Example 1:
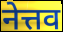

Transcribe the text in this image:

नेत्तव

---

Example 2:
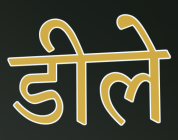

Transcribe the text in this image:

डीले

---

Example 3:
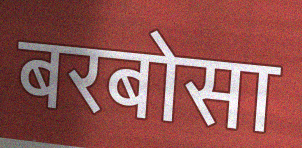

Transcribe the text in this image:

बरबोसा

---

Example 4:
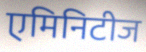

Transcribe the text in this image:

एमिनिटीज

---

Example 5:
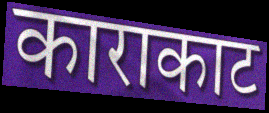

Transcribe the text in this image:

काराकाट